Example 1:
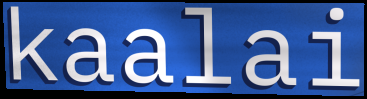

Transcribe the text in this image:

kaalai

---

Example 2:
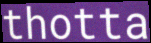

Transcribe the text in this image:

thotta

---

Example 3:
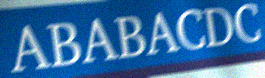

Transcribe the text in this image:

ABABACDC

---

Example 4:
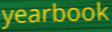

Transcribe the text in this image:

yearbook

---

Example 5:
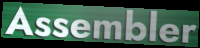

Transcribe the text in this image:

Assembler